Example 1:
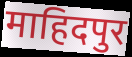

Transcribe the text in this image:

माहिदपुर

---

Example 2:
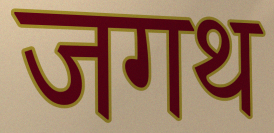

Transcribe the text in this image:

जगथ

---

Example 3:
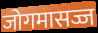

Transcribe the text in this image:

जोगमासज्ज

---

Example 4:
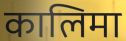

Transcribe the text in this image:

कालिमा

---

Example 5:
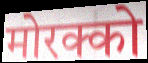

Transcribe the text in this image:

मोरक्को